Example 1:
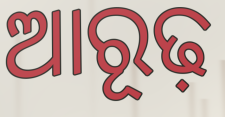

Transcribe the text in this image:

ଆରୂଢ଼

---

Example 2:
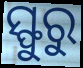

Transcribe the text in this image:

ସ୍ଫୁରୁ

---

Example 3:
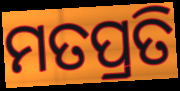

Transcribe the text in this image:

ମତପ୍ରତି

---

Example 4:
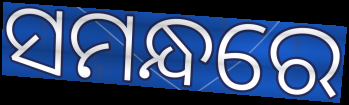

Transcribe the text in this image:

ସମନ୍ଧରେ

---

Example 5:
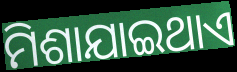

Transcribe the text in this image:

ମିଶାଯାଇଥାଏ